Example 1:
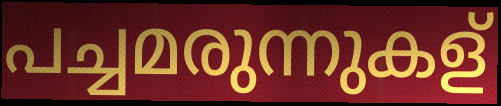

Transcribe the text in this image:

പച്ചമരുന്നുകള്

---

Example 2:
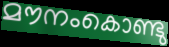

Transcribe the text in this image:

മൗനംകൊണ്ടു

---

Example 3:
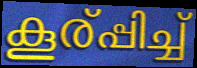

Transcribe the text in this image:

കൂര്പ്പിച്ച്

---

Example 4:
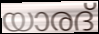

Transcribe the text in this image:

യാരദ്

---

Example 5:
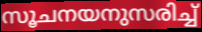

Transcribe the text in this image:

സൂചനയനുസരിച്ച്